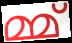
മ്മ്